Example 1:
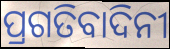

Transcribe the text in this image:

ପ୍ରଗତିବାଦିନୀ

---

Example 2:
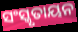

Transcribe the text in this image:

ସଂସ୍କୃତାୟନ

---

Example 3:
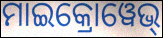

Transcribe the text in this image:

ମାଇକ୍ରୋୱେଭ୍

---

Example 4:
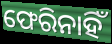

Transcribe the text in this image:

ଫେରିନାହିଁ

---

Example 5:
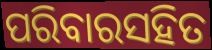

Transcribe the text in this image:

ପରିବାରସହିତ